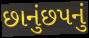
છાનુંછપનું